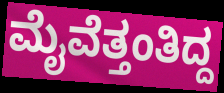
ಮೈವೆತ್ತಂತಿದ್ದ